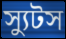
স্যুটস